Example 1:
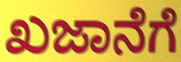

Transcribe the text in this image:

ಖಜಾನೆಗೆ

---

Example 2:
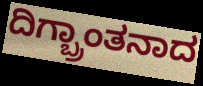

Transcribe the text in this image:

ದಿಗ್ಬ್ರಾಂತನಾದ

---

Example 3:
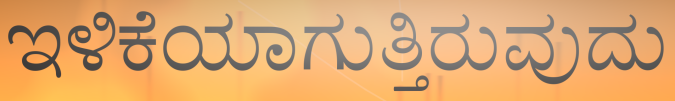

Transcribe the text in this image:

ಇಳಿಕೆಯಾಗುತ್ತಿರುವುದು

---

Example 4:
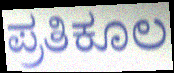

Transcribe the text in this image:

ಪ್ರತಿಕೂಲ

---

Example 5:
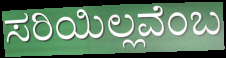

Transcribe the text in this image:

ಸರಿಯಿಲ್ಲವೆಂಬ